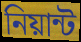
নিয়ান্ট